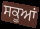
ਸਕੂਆਂ